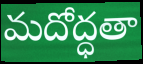
మదోద్ధతా